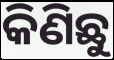
କିଣିଛୁ